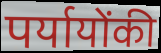
पर्यायोंकी